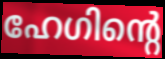
ഹേഗിന്റെ